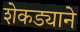
शेकड्याने